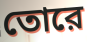
তোরে